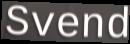
Svend